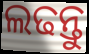
ଲଢନ୍ତୁ